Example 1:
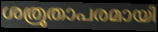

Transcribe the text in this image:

ശത്രുതാപരമായി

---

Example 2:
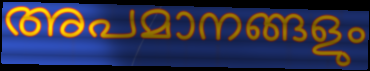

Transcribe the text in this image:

അപമാനങ്ങളും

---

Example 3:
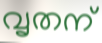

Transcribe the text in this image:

വൃതന്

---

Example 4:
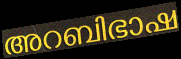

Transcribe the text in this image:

അറബിഭാഷ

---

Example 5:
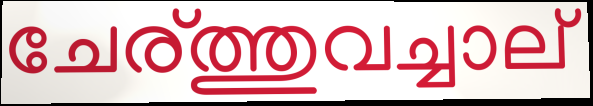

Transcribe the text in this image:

ചേര്ത്തുവച്ചാല്